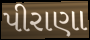
પીરાણા